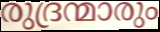
രുദ്രന്മാരും